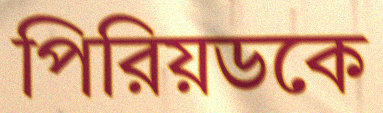
পিরিয়ডকে